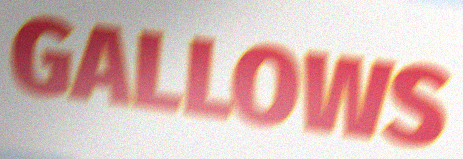
GALLOWS